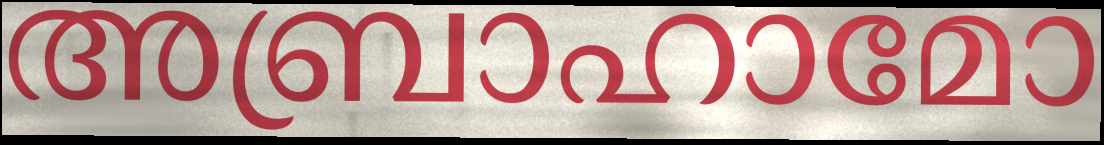
അബ്രാഹാമോ